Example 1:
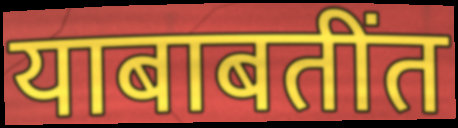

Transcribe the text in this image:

याबाबतींत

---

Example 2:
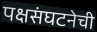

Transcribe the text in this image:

पक्षसंघटनेची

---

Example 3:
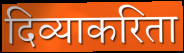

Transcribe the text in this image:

दिव्याकरिता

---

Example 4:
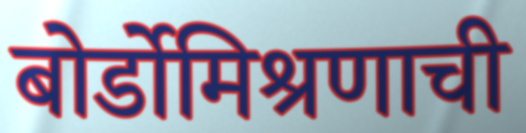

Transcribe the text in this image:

बोर्डोमिश्रणाची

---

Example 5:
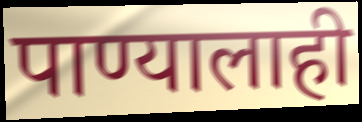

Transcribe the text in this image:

पाण्यालाही